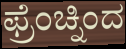
ಫ್ರೆಂಚ್ನಿಂದ